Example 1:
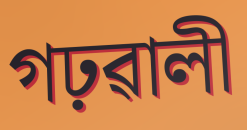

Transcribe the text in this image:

গঢ়ৱালী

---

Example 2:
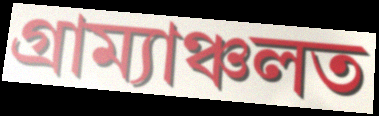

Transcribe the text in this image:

গ্ৰাম্যাঞ্চলত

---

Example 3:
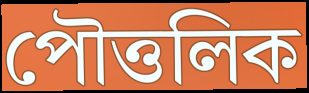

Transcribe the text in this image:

পৌত্তলিক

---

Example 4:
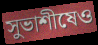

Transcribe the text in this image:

সুভাশীষেও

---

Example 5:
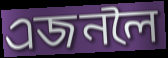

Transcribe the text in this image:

এজনলৈ